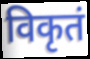
विकृतं